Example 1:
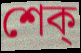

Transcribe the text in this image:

শেক্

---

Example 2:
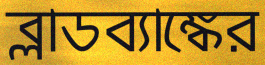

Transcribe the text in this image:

ব্লাডব্যাঙ্কের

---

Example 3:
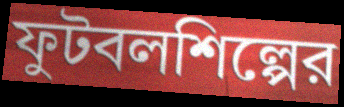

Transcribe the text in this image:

ফুটবলশিল্পের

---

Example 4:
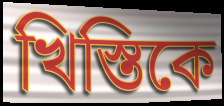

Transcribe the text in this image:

খিস্তিকে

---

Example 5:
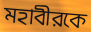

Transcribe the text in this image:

মহাবীরকে